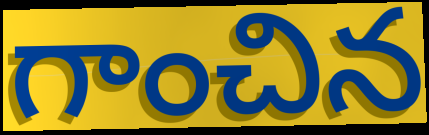
గాంచిన